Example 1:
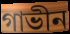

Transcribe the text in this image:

গাভীন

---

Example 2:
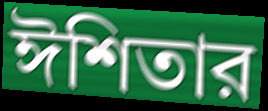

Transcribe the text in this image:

ঈশিতার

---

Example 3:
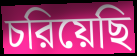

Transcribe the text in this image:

চরিয়েছি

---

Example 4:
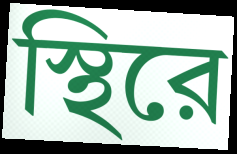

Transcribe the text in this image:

স্থিরে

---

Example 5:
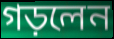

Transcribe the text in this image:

গড়লেন